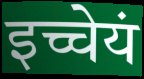
इच्चेयं